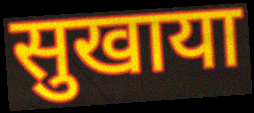
सुखाया